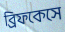
ব্রিফকেসে